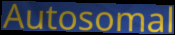
Autosomal